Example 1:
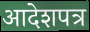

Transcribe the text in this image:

आदेशपत्र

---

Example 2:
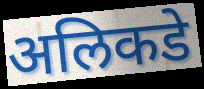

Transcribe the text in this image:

अलिकडे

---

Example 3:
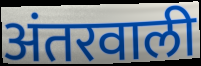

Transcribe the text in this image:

अंतरवाली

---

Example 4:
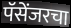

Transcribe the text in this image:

पॅसेंजरचा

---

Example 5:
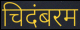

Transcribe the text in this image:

चिदंबरम